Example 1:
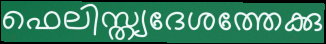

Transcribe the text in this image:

ഫെലിസ്ത്യദേശത്തേക്കു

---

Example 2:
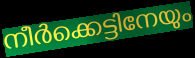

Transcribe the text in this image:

നീർക്കെട്ടിനേയും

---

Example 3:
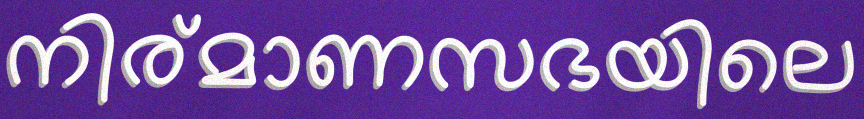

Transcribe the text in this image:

നിര്മാണസഭയിലെ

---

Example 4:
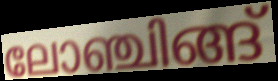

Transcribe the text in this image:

ലോഞ്ചിങ്ങ്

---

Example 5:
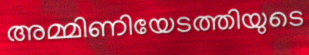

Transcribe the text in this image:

അമ്മിണിയേടത്തിയുടെ